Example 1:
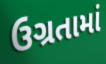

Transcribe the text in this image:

ઉગ્રતામાં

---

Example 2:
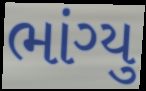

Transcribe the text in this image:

ભાંગ્યુ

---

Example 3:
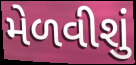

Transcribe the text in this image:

મેળવીશું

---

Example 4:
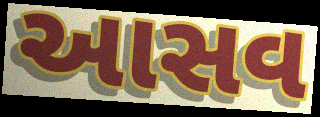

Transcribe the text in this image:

આસવ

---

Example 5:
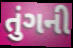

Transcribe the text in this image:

તુંગની